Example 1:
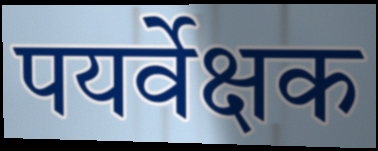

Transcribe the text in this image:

पयर्वेक्षक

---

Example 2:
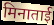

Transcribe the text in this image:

मिनाताई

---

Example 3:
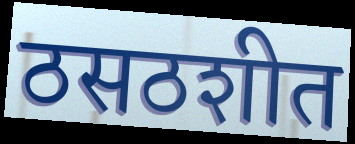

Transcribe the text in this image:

ठसठशीत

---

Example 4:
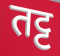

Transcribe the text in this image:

तट्ट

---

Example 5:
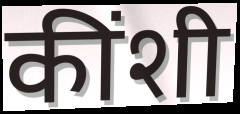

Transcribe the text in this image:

कींशी